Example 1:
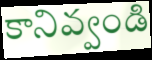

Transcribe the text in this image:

కానివ్వండి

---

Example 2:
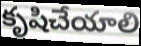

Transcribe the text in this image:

కృషిచేయాలి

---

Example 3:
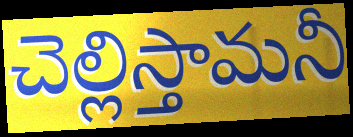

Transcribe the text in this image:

చెల్లిస్తామనీ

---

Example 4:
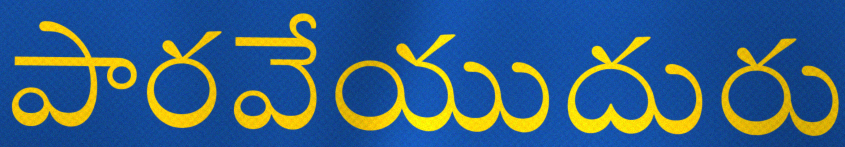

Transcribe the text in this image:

పారవేయుదురు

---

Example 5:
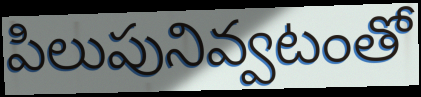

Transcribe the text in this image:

పిలుపునివ్వటంతో